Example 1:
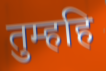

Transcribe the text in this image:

तुम्हहि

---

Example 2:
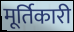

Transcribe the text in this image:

मूर्तिकारी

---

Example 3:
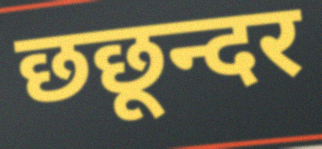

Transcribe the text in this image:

छछून्दर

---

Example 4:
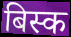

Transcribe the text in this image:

बिस्क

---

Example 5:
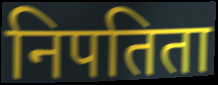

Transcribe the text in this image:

निपतिता